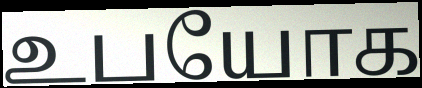
உபயோக